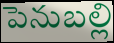
పెనుబల్లి